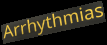
Arrhythmias